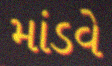
માંડવે